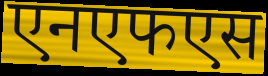
एनएफएस